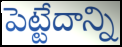
పెట్టేదాన్ని